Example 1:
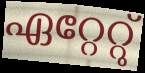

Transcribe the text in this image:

ഏറ്റേറ്റു്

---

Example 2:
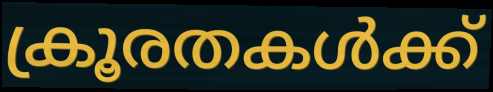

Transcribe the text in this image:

ക്രൂരതകൾക്ക്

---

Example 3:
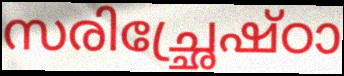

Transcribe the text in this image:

സരിച്ഛ്രേഷ്ഠാ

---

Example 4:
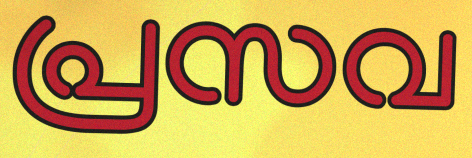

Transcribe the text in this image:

പ്രസവ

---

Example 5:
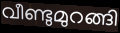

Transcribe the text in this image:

വീണ്ടുമുറങ്ങി